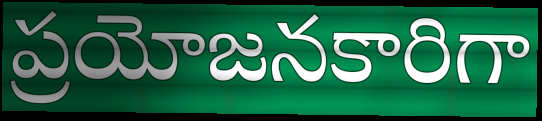
ప్రయోజనకారిగా